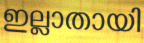
ഇല്ലാതായി